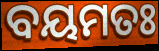
ବୟମତଃ